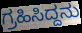
ಗ್ರಹಿಸಿದ್ದನು